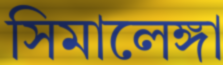
সিমালেঙ্গা